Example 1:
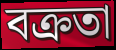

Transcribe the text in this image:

বক্ৰতা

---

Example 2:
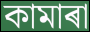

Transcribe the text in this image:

কামাৰা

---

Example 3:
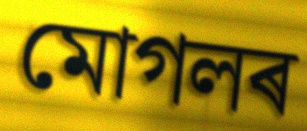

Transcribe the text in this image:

মোগলৰ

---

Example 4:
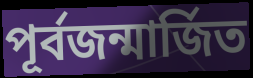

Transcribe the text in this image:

পূৰ্বজন্মাৰ্জিত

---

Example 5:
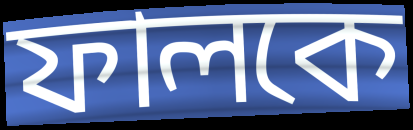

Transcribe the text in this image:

ফালকে